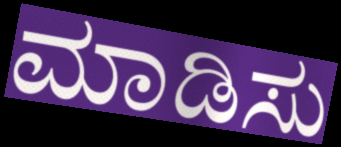
ಮಾಡಿಸು